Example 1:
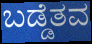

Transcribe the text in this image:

ಬಡ್ಡೆತವ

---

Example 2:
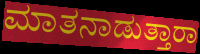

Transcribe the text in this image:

ಮಾತನಾಡುತ್ತಾರಾ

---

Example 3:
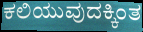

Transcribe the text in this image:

ಕಲಿಯುವುದಕ್ಕಿಂತ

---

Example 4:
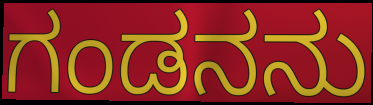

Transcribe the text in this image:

ಗಂಡನನು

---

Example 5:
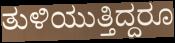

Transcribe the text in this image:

ತುಳಿಯುತ್ತಿದ್ದರೂ